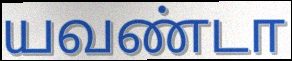
யவண்டா